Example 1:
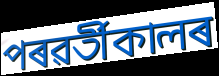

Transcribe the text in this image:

পৰৱৰ্তীকালৰ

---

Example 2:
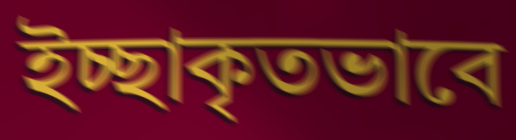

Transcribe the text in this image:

ইচ্ছাকৃতভাবে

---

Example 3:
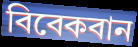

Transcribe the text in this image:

বিবেকবান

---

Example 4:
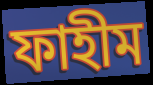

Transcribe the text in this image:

ফাহীম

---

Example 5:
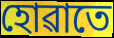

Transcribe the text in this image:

হোৱাতে